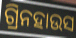
ଗ୍ରିନହାଉସ